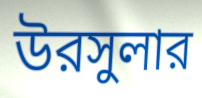
উরসুলার